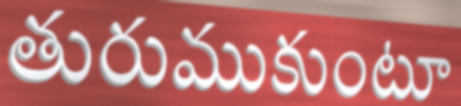
తురుముకుంటూ